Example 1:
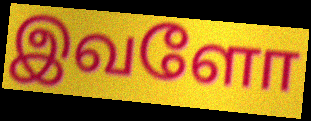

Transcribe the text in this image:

இவளோ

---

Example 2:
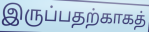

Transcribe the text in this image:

இருப்பதற்காகத்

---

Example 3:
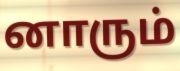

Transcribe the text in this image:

னாரும்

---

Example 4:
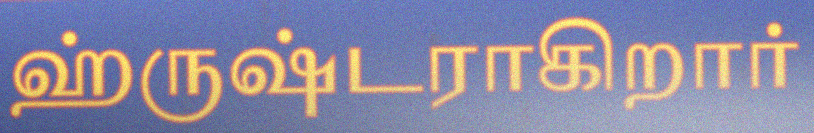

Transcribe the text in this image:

ஹ்ருஷ்டராகிறார்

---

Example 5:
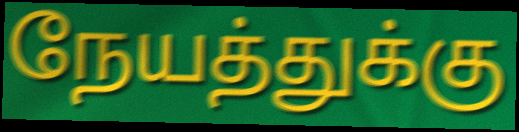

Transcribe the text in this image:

நேயத்துக்கு